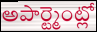
అపార్ట్మెంట్లో